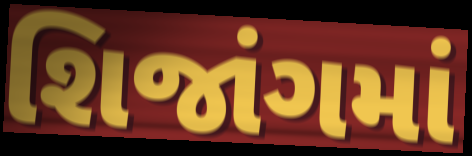
શિજાંગમાં